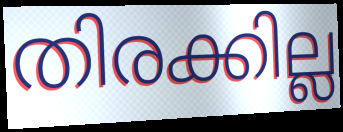
തിരക്കില്ല